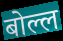
बोल्ल